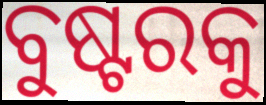
ବୁଷ୍ଟରକୁ